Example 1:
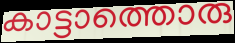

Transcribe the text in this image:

കാട്ടാത്തൊരു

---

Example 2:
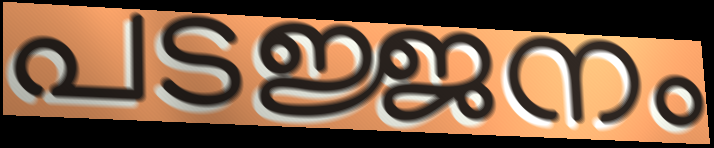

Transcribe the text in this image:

പടജ്ജനം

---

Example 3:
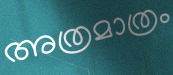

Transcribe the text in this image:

അത്രമാത്രം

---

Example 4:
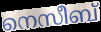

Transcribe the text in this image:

നെസീബ്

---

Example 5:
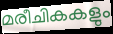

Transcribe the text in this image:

മരീചികകളും